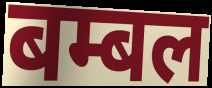
बम्बल